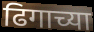
ढिगाच्या